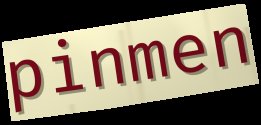
pinmen